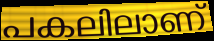
പകലിലാണ്